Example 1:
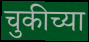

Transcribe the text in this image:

चुकीच्या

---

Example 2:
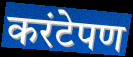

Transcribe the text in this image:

करंटेपण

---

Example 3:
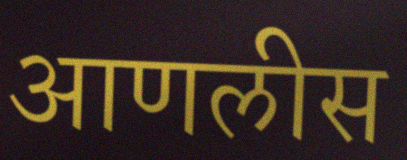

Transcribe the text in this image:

आणलीस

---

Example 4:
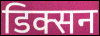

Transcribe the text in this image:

डिक्सन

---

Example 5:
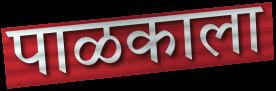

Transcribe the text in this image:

पाळकाला